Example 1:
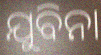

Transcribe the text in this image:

ଯୁବିନା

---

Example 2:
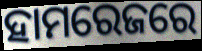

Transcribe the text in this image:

ହାମରେଜରେ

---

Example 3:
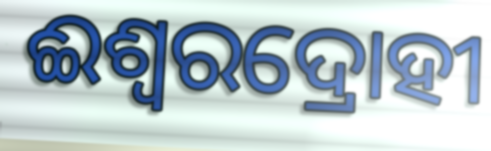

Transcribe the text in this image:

ଈଶ୍ଵରଦ୍ରୋହୀ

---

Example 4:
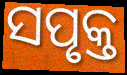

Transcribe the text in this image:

ସପୃକ୍ତ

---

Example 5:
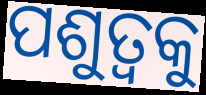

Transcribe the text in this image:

ପଶୁତ୍ୱକୁ